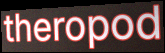
theropod